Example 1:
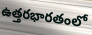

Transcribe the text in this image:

ఉత్తరభారతంలో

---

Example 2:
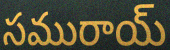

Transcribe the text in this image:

సమురాయ్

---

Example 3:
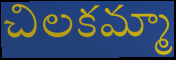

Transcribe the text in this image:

చిలకమ్మా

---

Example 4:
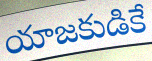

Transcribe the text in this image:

యాజకుడికే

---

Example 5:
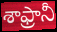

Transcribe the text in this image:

శాఫ్రానీ